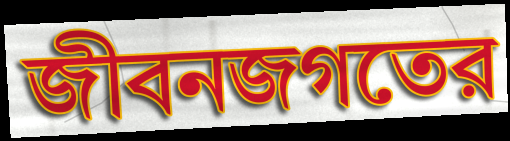
জীবনজগতের